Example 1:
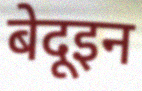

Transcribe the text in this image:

बेदूइन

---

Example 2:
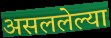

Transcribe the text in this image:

असललेल्या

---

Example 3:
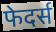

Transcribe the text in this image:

फेदर्स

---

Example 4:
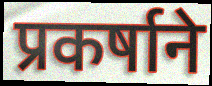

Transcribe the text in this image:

प्रकर्षाने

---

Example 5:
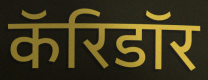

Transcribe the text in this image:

कॅरिडॉर